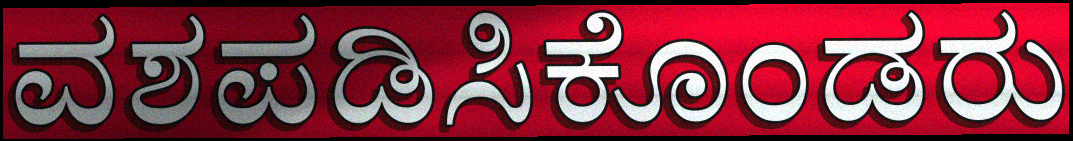
ವಶಪಡಿಸಿಕೊಂಡರು